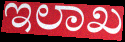
ಇಲಾಖ